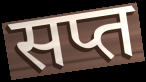
सप्त